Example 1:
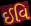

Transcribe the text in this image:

ઈવિ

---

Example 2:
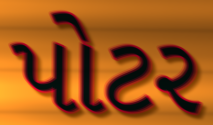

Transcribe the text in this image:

પોટર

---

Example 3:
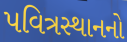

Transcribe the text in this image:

પવિત્રસ્થાનનો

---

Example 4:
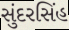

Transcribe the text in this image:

સુંદરસિંહ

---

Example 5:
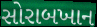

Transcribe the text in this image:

સોરાબખાન